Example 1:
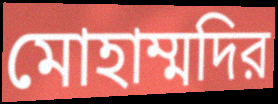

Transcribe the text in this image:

মোহাম্মদির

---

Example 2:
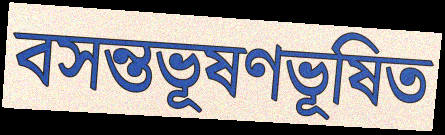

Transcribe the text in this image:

বসন্তভূষণভূষিত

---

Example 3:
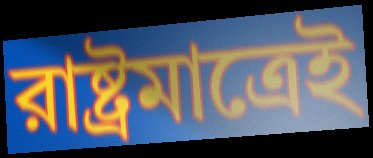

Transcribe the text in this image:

রাষ্ট্রমাত্রেই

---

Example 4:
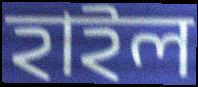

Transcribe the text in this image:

হাইল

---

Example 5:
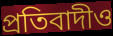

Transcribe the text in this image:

প্রতিবাদীও